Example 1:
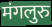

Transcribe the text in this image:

मंगलुरु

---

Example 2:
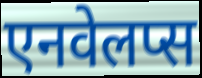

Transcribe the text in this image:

एनवेलप्स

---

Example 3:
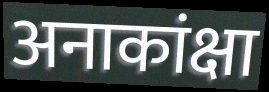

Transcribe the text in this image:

अनाकांक्षा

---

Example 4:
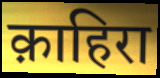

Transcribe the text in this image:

क़ाहिरा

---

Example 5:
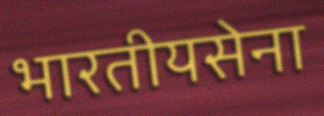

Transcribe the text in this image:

भारतीयसेना